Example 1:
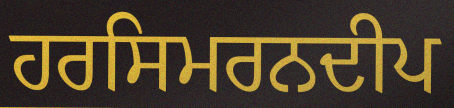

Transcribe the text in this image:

ਹਰਸਿਮਰਨਦੀਪ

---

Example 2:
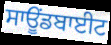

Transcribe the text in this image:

ਸਾਊਂਡਬਾਈਟ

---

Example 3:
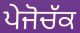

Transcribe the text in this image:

ਪੇਜੋਚੱਕ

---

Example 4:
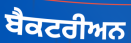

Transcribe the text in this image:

ਬੈਕਟਰੀਅਨ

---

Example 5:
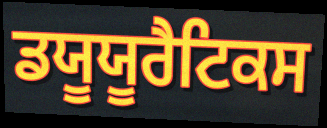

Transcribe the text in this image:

ਡਯੂਯੂਰੈਟਿਕਸ